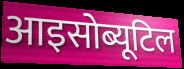
आइसोब्यूटिल